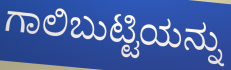
ಗಾಲಿಬುಟ್ಟಿಯನ್ನು